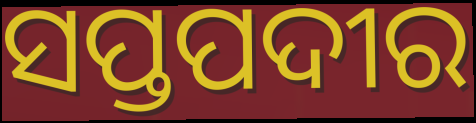
ସପ୍ତପଦୀର